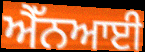
ਐੱਨਆਈ